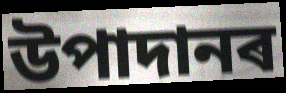
উপাদানৰ